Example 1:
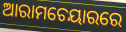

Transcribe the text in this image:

ଆରାମଚେୟାରରେ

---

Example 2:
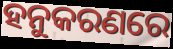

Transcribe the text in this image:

ହନୁକରଣରେ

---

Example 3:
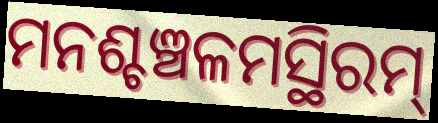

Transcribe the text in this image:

ମନଶ୍ଚଞ୍ଚଳମସ୍ଥିରମ୍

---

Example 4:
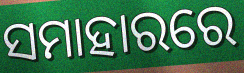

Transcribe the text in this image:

ସମାହାରରେ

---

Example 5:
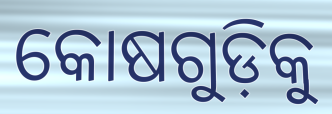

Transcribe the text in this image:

କୋଷଗୁଡ଼ିକୁ